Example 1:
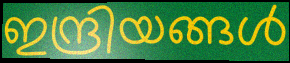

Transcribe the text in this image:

ഇന്ദ്രിയങ്ങൾ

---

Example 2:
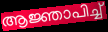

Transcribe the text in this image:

ആജ്ഞാപിച്ച്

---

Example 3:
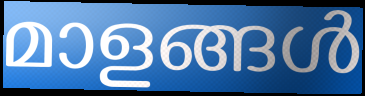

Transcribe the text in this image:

മാളങ്ങൾ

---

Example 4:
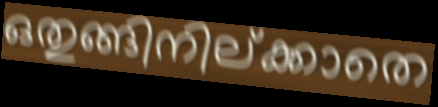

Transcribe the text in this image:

ഒതുങ്ങിനില്ക്കാതെ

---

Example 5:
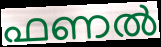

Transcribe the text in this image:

ഫണൽ